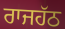
ਰਾਜਹੱਠ